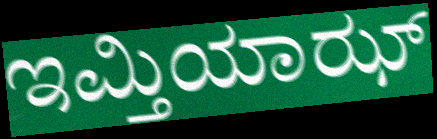
ಇಮ್ತಿಯಾಝ್